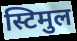
स्टिमुल